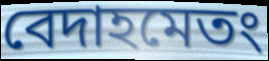
বেদাহমেতং